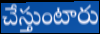
చేస్తుంటారు